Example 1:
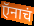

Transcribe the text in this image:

ऍनाचं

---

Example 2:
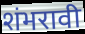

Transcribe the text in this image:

शंभरावी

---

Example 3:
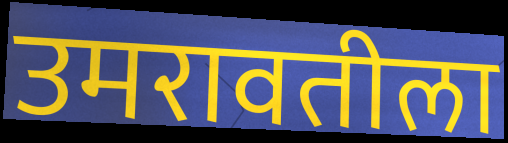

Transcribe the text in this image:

उमरावतीला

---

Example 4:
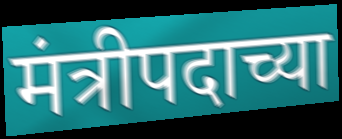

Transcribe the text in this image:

मंत्रीपदाच्या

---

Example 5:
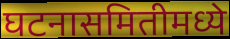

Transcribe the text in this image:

घटनासमितीमध्ये